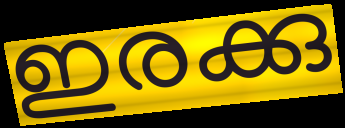
ഇരക്കു